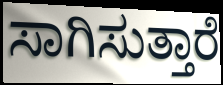
ಸಾಗಿಸುತ್ತಾರೆ